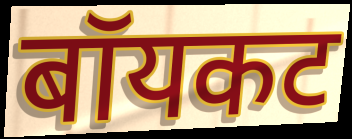
बॉयकट